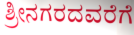
ಶ್ರೀನಗರದವರೆಗೆ